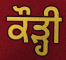
ਕੌੜ੍ਹੀ